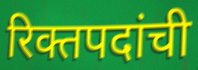
रिक्तपदांची